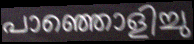
പാഞ്ഞൊളിച്ചു